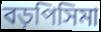
বড়পিসিমা